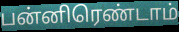
பன்னிரெண்டாம்